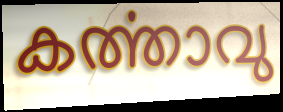
കൎത്താവു